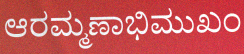
ಆರಮ್ಮಣಾಭಿಮುಖಂ